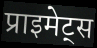
प्राइमेट्स